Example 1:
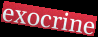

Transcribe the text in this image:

exocrine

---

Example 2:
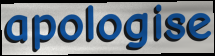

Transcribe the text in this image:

apologise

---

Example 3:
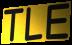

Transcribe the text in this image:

TLE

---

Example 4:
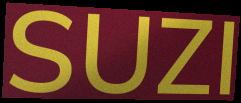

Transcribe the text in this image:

SUZI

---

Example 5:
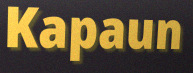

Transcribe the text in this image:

Kapaun